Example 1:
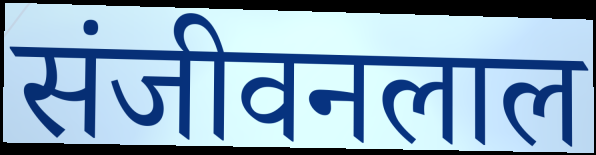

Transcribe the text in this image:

संजीवनलाल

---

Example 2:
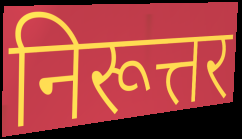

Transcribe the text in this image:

निरूत्तर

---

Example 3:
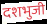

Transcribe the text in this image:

दशभुजी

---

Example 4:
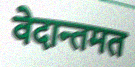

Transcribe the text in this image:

वेदान्तमत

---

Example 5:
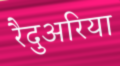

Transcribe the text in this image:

रैदुअरिया